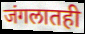
जंगलातही